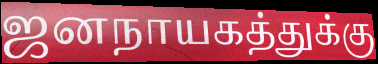
ஜனநாயகத்துக்கு